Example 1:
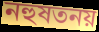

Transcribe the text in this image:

নহুষতনয়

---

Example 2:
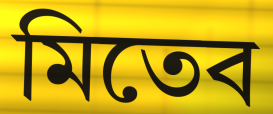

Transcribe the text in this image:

মিতেব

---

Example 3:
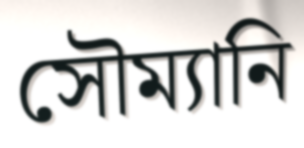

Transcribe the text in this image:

সৌম্যানি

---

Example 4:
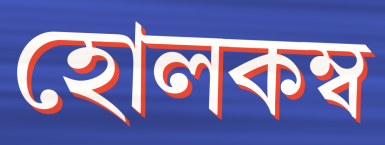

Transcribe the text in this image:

হোলকম্ব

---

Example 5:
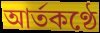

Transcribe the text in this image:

আর্তকণ্ঠে